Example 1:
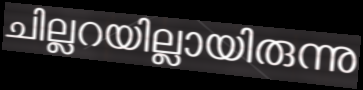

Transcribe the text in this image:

ചില്ലറയില്ലായിരുന്നു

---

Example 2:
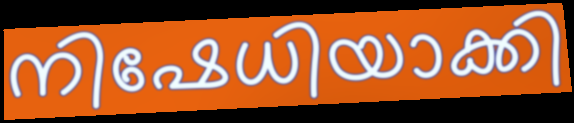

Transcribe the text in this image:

നിഷേധിയാക്കി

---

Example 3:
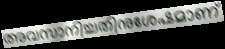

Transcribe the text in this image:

അവസാനിച്ചതിനുശേഷമാണ്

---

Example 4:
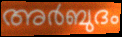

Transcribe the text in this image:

അർബുദം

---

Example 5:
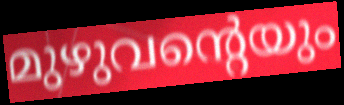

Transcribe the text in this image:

മുഴുവന്റെയും